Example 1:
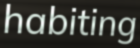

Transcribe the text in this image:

habiting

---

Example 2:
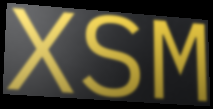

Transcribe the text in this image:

XSM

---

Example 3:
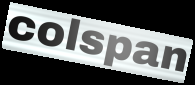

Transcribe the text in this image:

colspan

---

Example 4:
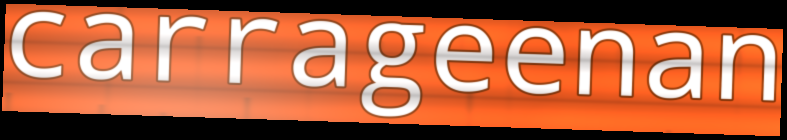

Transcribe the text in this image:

carrageenan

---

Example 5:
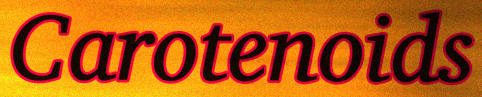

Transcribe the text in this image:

Carotenoids